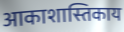
आकाशास्तिकाय